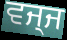
ਵਜ੍ਜ